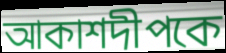
আকাশদীপকে